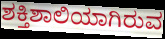
ಶಕ್ತಿಶಾಲಿಯಾಗಿರುವ